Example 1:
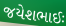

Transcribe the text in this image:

જયેશભાઈઃ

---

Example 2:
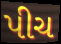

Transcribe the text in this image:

પીચ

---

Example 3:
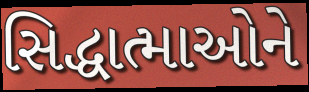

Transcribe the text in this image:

સિદ્ધાત્માઓને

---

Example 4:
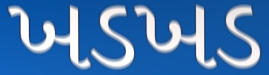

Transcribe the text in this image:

ખડખડ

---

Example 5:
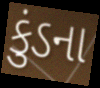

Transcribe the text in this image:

કુંડના